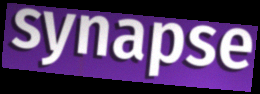
synapse